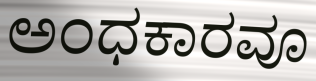
ಅಂಧಕಾರವೂ